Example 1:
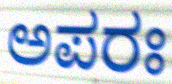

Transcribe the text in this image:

ಅಪರಃ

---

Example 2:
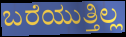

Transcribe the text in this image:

ಬರೆಯುತ್ತಿಲ್ಲ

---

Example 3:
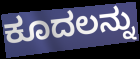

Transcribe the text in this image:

ಕೂದಲನ್ನು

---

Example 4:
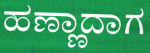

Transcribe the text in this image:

ಹಣ್ಣಾದಾಗ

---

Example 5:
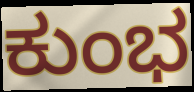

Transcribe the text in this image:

ಕುಂಭ